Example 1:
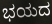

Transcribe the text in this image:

ಭಯದ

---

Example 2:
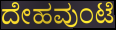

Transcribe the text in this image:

ದೇಹವುಂಟೆ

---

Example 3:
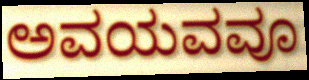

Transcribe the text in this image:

ಅವಯವವೂ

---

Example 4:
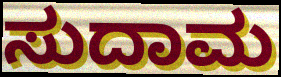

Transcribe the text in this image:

ಸುದಾಮ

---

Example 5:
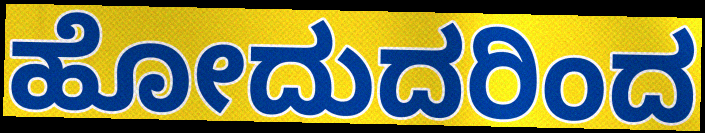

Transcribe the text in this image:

ಹೋದುದರಿಂದ